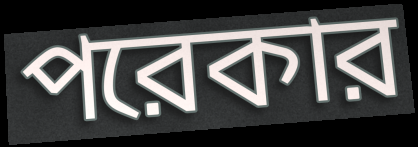
পরেকার